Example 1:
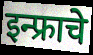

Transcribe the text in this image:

इन्फ्राचे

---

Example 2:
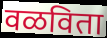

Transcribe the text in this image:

वळविता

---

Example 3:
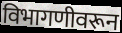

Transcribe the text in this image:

विभागणीवरून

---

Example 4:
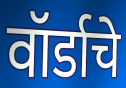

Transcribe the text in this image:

वॉर्डाचे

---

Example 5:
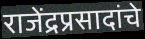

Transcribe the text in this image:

राजेंद्रप्रसादांचे